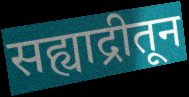
सह्याद्रीतून